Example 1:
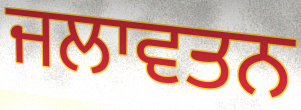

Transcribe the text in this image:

ਜਲਾਵਤਨ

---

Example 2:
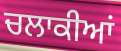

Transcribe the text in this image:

ਚਲਾਕੀਆਂ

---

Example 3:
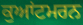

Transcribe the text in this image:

ਕੁਆਂਟਮਰਨ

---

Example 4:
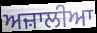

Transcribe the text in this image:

ਅਜ਼ਾਲੀਆ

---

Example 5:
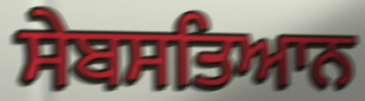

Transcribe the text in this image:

ਸੇਬਸਤਿਆਨ